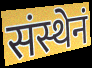
संस्थेनं